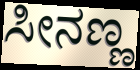
ಸೀನಣ್ಣ